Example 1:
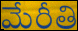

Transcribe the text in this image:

మేరీతి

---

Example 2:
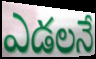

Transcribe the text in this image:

ఎడలనే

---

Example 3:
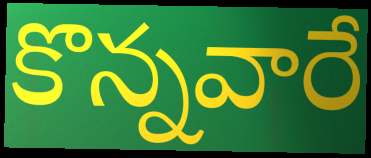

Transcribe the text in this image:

కొన్నవారే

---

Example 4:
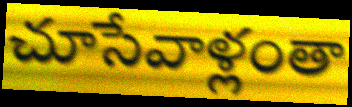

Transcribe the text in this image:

చూసేవాళ్లంతా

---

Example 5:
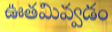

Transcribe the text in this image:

ఊతమివ్వడం